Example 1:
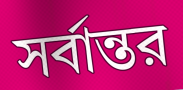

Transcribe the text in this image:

সর্বান্তর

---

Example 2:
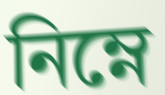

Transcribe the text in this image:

নিম্নে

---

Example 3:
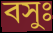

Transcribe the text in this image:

বসুঃ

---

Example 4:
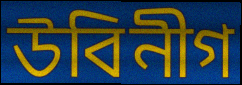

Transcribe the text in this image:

উবিনীগ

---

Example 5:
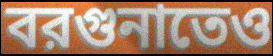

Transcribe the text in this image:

বরগুনাতেও